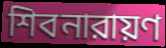
শিবনারায়ণ